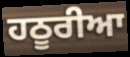
ਹਠੂਰੀਆ